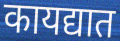
कायद्यात